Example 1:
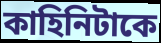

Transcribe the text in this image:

কাহিনিটাকে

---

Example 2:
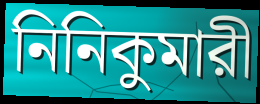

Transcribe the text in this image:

নিনিকুমারী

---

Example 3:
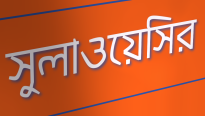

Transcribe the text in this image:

সুলাওয়েসির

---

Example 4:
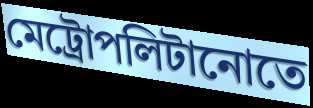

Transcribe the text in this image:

মেট্রোপলিটানোতে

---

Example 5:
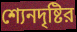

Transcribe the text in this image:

শ্যেনদৃষ্টির